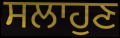
ਸਲਾਹੁਣ